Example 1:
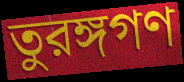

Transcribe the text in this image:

তুরঙ্গগণ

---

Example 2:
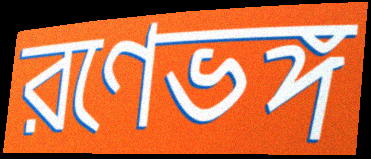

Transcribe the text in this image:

রণেভঙ্গ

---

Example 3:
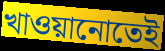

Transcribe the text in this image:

খাওয়ানোতেই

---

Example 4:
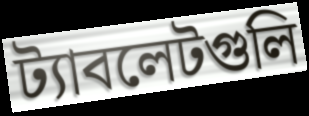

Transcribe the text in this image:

ট্যাবলেটগুলি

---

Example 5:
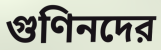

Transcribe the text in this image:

গুণিনদের